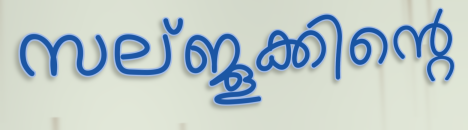
സല്ജൂക്കിന്റെ